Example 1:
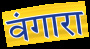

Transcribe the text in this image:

वंगारा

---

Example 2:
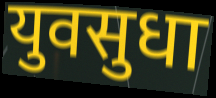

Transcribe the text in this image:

युवसुधा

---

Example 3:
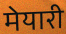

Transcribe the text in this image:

मेयारी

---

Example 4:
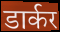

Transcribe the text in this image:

डार्कर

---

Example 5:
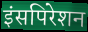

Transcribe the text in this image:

इंसपिरेशन